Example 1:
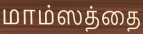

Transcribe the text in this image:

மாம்ஸத்தை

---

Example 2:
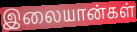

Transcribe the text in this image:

இலையான்கள்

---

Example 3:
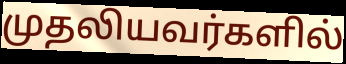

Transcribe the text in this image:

முதலியவர்களில்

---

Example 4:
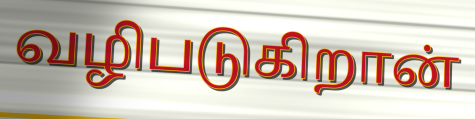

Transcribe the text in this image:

வழிபடுகிறான்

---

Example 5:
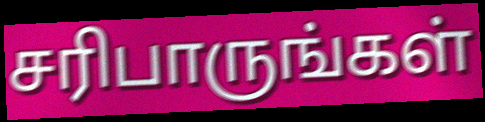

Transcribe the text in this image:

சரிபாருங்கள்